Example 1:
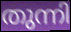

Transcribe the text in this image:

തുന്നി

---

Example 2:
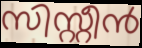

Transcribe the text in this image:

സിസ്റ്റീൻ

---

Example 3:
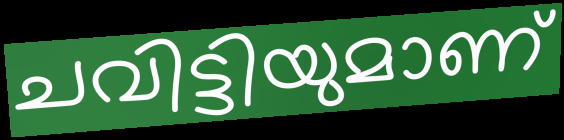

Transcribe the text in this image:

ചവിട്ടിയുമാണ്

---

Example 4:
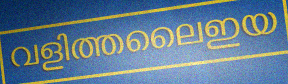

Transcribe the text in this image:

വളിത്തലൈഇയ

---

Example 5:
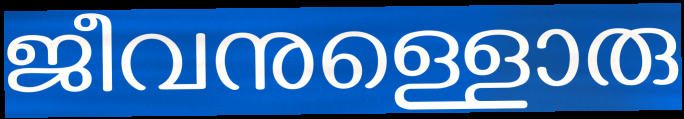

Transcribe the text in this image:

ജീവനുള്ളൊരു